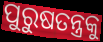
ପୁରୁଷତନ୍ତ୍ରକୁ